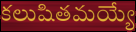
కలుషితమయ్యే